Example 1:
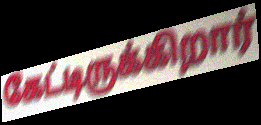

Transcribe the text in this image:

கேட்டிருக்கிறார்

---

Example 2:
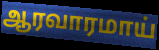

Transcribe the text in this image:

ஆரவாரமாய்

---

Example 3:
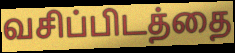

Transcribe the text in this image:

வசிப்பிடத்தை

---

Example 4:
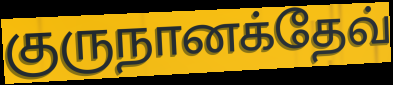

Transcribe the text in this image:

குருநானக்தேவ்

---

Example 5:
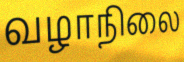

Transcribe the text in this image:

வழாநிலை